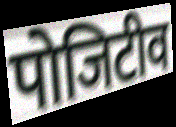
पोजिटीव